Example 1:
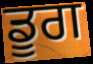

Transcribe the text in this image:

ਡੂਗ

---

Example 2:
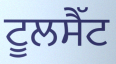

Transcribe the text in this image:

ਟੂਲਸੈੱਟ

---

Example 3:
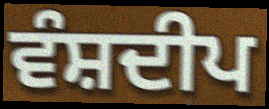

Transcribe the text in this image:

ਵੰਸ਼ਦੀਪ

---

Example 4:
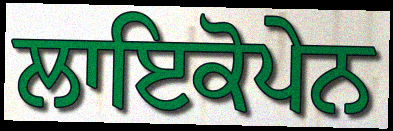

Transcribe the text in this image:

ਲਾਇਕੋਪੇਨ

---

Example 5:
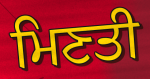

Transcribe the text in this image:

ਮਿਣਤੀ